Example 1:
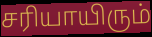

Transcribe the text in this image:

சரியாயிரும்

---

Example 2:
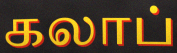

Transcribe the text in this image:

கலாப்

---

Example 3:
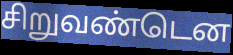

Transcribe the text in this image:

சிறுவண்டென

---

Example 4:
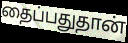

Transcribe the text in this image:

தைப்பதுதான்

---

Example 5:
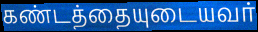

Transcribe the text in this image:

கண்டத்தையுடையவர்